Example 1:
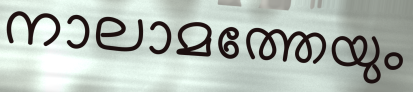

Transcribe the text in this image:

നാലാമത്തേയും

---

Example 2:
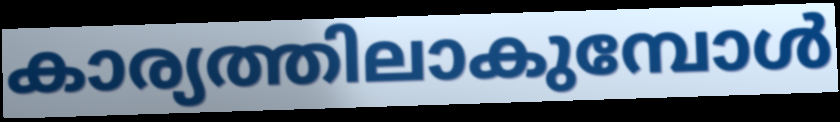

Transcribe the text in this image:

കാര്യത്തിലാകുമ്പോൾ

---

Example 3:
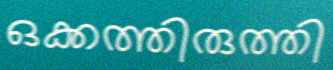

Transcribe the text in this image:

ഒക്കത്തിരുത്തി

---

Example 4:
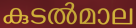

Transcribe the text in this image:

കുടൽമാല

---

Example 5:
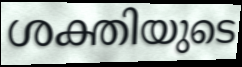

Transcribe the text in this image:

ശക്തിയുടെ